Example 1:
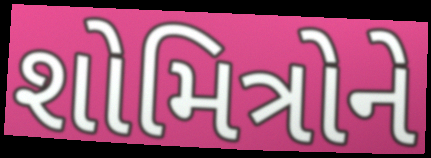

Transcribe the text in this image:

શોમિત્રોને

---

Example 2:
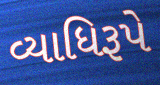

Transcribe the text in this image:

વ્યાધિરૂપે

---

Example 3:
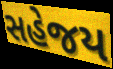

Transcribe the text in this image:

સહેજય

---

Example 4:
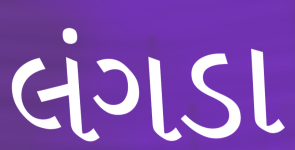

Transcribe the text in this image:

લંગડા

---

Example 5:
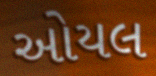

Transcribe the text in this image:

ઓયલ